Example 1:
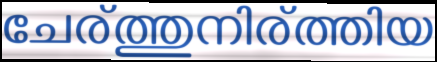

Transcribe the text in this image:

ചേര്ത്തുനിര്ത്തിയ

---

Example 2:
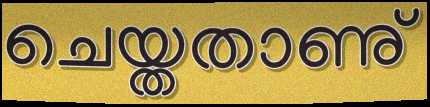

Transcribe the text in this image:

ചെയ്തതാണു്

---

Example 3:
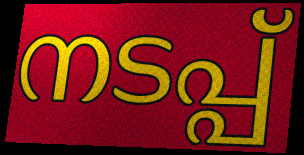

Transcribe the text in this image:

നടപ്പ്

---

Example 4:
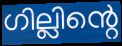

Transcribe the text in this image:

ഗില്ലിന്റെ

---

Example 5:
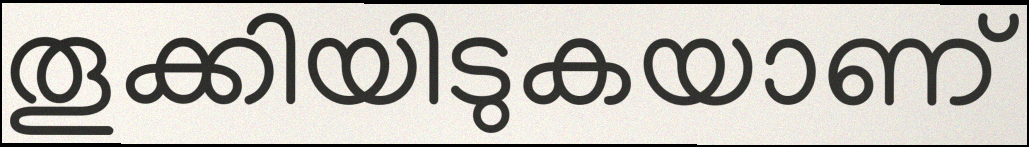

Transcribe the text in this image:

തൂക്കിയിടുകയാണ്